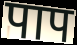
पाप